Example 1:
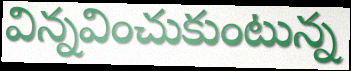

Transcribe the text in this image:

విన్నవించుకుంటున్న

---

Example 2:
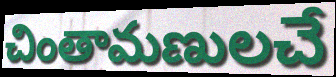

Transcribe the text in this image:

చింతామణులచే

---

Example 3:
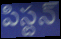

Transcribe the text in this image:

పిస్టన్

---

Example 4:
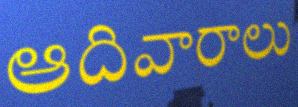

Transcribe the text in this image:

ఆదివారాలు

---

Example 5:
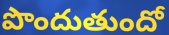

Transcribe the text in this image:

పొందుతుందో